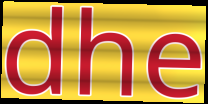
dhe